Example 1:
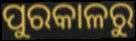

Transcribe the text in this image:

ପୁରକାଳରୁ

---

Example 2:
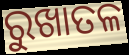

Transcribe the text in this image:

ରୁଖାତଳ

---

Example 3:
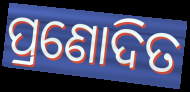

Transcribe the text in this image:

ପ୍ରଣୋଦିତ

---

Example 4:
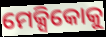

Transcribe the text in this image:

ମେକ୍ସିକୋକୁ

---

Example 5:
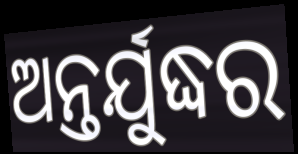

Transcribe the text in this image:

ଅନ୍ତର୍ଯୁଦ୍ଧର